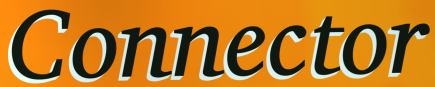
Connector